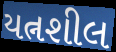
યત્નશીલ